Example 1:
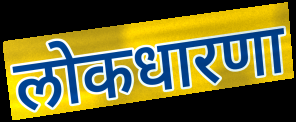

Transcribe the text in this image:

लोकधारणा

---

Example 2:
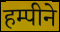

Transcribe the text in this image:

हम्पीने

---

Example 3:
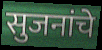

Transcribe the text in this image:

सुजनांचे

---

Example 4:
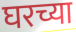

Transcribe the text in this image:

घरच्या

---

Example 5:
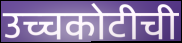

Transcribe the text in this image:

उच्चकोटीची